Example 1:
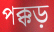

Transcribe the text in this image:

পক্কড়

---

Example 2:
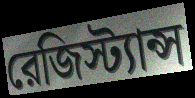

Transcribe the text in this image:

রেজিস্ট্যান্স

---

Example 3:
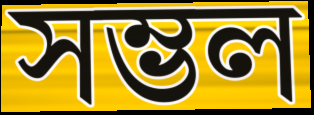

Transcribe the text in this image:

সম্ভল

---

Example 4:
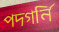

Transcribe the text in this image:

পদগর্নি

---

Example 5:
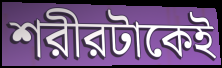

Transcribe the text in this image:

শরীরটাকেই